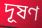
দূষণ